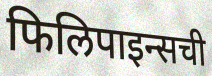
फिलिपाइन्सची